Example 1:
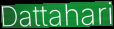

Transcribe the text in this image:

Dattahari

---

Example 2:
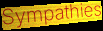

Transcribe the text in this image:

Sympathies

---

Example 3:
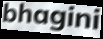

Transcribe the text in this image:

bhagini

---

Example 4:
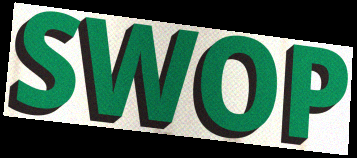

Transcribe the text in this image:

SWOP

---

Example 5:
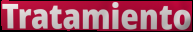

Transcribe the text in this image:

Tratamiento